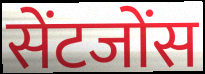
सेंटजोंस